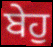
ਬੇਹੁ